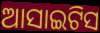
ଆସାଇଟିସ